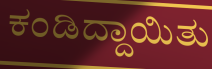
ಕಂಡಿದ್ದಾಯಿತು